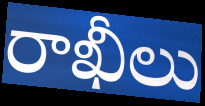
రాఖీలు